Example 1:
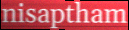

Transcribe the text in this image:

nisaptham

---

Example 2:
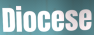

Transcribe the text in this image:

Diocese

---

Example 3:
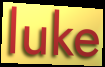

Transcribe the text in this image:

luke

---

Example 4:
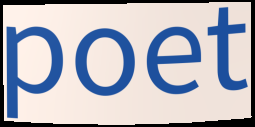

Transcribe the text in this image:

poet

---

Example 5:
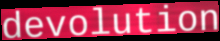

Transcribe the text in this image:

devolution